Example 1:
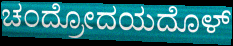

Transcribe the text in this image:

ಚಂದ್ರೋದಯದೊಳ್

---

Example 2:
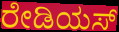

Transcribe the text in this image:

ರೇಡಿಯಸ್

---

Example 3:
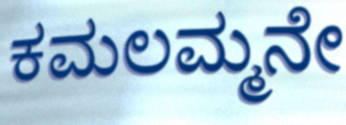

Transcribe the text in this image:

ಕಮಲಮ್ಮನೇ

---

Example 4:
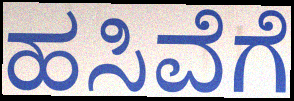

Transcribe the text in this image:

ಹಸಿವೆಗೆ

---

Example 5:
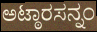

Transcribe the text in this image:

ಅಟ್ಠಾರಸನ್ನಂ